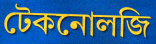
টেকনোলজি